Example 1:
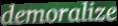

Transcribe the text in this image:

demoralize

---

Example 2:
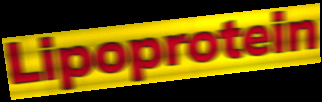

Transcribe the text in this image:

Lipoprotein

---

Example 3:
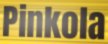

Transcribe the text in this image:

Pinkola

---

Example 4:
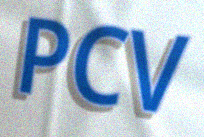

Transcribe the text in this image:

PCV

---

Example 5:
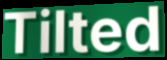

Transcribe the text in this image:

Tilted